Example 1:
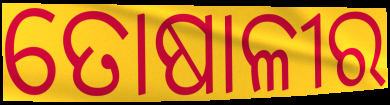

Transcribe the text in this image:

ତୋଷାଳୀର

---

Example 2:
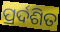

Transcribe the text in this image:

ପ୍ରର୍ଦଶିତ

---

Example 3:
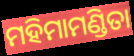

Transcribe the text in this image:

ମହିମାମଣ୍ଡିତା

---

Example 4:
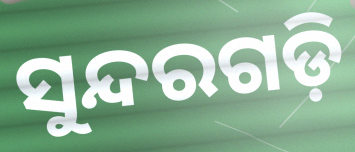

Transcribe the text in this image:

ସୁନ୍ଦରଗଡ଼ି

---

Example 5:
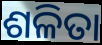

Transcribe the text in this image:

ଶଳିତା